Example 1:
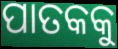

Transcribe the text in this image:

ପାତକକୁ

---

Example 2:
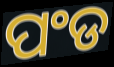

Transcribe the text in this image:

ପଂଡ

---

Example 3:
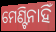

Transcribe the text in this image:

ମେଣ୍ଟିନାହିଁ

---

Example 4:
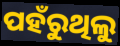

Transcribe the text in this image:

ପହଁରୁଥିଲୁ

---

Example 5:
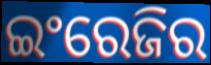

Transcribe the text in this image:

ଇଂରେଜିର